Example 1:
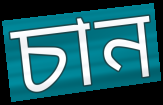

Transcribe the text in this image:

চান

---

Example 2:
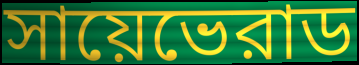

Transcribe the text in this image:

সায়েভেরাড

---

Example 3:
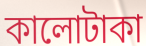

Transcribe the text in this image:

কালোটাকা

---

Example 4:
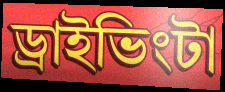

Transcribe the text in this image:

ড্রাইভিংটা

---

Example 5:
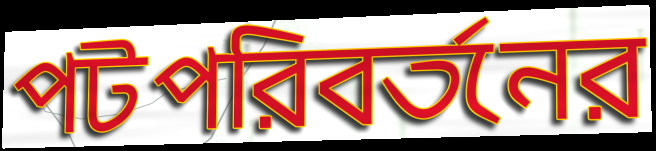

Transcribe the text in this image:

পটপরিবর্তনের